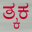
ತ್ಕಕ